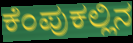
ಕೆಂಪುಕಲ್ಲಿನ